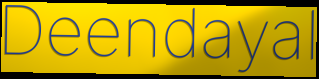
Deendayal